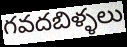
గవదబిళ్ళలు